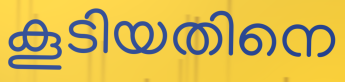
കൂടിയതിനെ